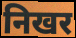
निखर